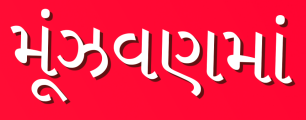
મૂંઝવણમાં